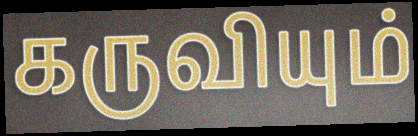
கருவியும்